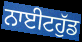
ਨਾਈਟਹੁੱਡ